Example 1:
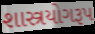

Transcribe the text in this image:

શાસ્ત્રયોગરૂપ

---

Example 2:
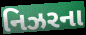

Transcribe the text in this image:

નિઝરના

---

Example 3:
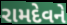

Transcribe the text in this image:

રામદેવને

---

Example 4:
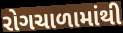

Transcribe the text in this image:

રોગચાળામાંથી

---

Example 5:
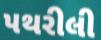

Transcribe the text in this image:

પથરીલી